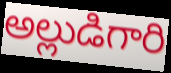
అల్లుడిగారి